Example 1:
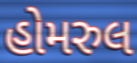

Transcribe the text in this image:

હોમરુલ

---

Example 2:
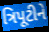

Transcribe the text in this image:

ત્રિપૂટીને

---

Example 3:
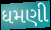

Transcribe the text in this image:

ધમણી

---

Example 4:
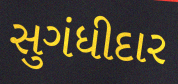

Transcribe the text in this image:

સુગંધીદાર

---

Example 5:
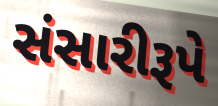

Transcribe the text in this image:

સંસારીરૂપે